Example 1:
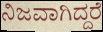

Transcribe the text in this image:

ನಿಜವಾಗಿದ್ದರೆ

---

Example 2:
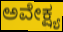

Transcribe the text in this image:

ಅವೇಕ್ಷ್ಯ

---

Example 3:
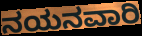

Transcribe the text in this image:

ನಯನವಾರಿ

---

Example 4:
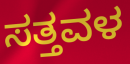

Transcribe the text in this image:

ಸತ್ತವಳ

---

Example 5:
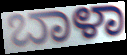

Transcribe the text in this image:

ಬಾಳಾ